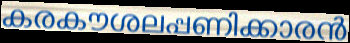
കരകൗശലപ്പണിക്കാരൻ